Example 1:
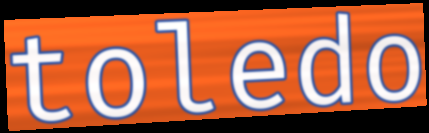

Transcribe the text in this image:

toledo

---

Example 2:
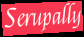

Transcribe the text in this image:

Serupally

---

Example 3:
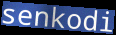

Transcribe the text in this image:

senkodi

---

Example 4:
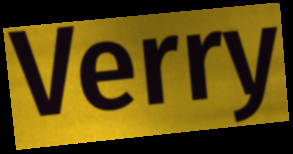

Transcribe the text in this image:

Verry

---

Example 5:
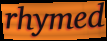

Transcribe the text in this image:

rhymed